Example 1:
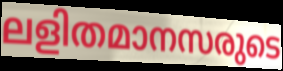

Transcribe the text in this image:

ലളിതമാനസരുടെ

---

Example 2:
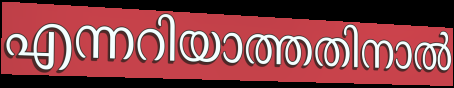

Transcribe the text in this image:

എന്നറിയാത്തതിനാൽ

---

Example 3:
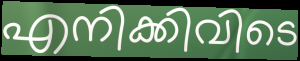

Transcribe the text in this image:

എനിക്കിവിടെ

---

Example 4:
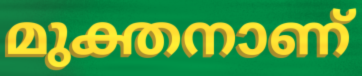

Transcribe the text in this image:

മുക്തനാണ്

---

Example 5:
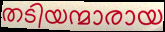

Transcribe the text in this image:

തടിയന്മാരായ